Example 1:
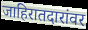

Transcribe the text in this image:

जाहिरातदारांवर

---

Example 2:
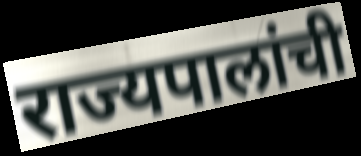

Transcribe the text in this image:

राज्यपालांची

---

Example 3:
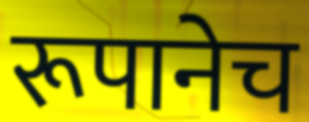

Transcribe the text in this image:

रूपानेच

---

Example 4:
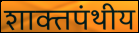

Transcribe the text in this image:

शाक्तपंथीय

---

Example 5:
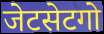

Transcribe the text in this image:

जेटसेटगो